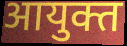
आयुक्‍त